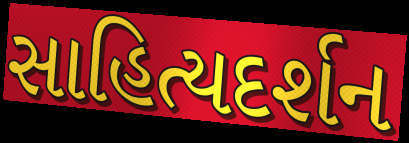
સાહિત્યદર્શન